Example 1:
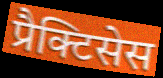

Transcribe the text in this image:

प्रैक्टिसेस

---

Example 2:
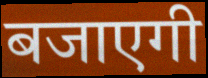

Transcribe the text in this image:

बजाएगी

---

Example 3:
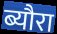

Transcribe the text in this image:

ब्यौरा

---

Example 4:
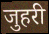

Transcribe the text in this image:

जुहरी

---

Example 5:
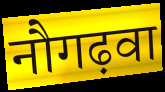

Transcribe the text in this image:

नौगढ़वा